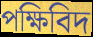
পক্ষিবিদ